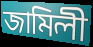
জামিলী